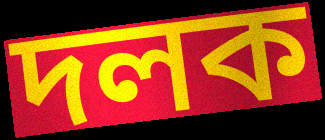
দলক